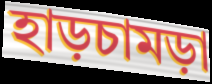
হাড়চামড়া